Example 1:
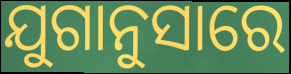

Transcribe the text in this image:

ଯୁଗାନୁସାରେ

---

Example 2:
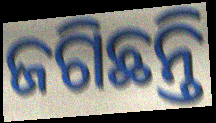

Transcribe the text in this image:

ଜଗିଛନ୍ତି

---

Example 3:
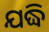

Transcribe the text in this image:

ଯଦ୍ଧି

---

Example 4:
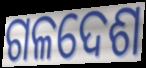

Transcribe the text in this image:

ଗଳଦେଶ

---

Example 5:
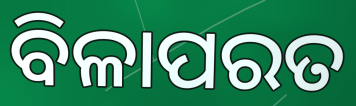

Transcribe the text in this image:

ବିଳାପରତ